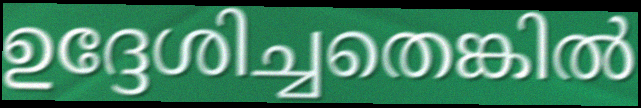
ഉദ്ദേശിച്ചതെങ്കിൽ